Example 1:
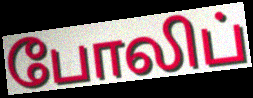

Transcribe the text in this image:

போலிப்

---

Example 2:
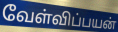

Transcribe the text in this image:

வேள்விப்பயன்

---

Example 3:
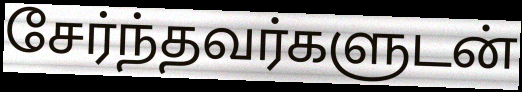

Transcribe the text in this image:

சேர்ந்தவர்களுடன்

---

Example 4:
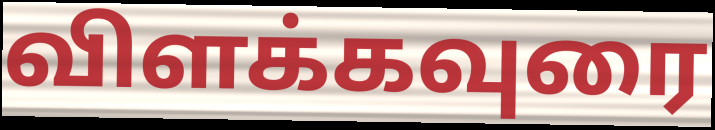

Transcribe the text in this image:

விளக்கவுரை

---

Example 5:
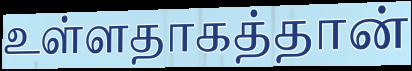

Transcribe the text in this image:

உள்ளதாகத்தான்